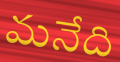
మనేది